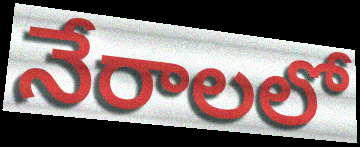
నేరాలలో